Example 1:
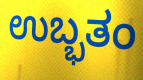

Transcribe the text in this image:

ಉಬ್ಭತಂ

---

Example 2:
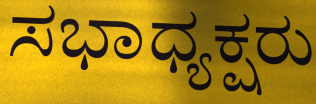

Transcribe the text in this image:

ಸಭಾಧ್ಯಕ್ಷರು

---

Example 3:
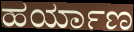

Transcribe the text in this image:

ಹರ್ಯಾಣ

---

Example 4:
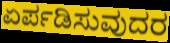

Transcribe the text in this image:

ಏರ್ಪಡಿಸುವುದರ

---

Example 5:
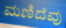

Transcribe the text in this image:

ಮಣಿದೆವು